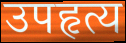
उपहृत्य